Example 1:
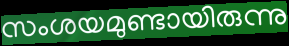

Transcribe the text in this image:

സംശയമുണ്ടായിരുന്നു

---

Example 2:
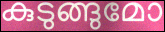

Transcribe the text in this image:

കുടുങ്ങുമോ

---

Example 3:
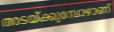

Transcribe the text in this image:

അടയ്ക്കുമ്പോഴാണ്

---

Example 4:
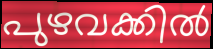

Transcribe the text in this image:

പുഴവക്കിൽ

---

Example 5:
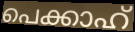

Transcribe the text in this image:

പെക്കാഹ്